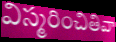
విస్మరించితివా